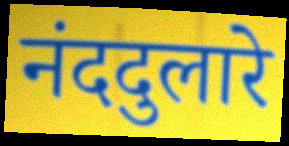
नंददुलारे